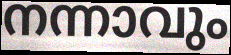
നന്നാവും